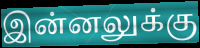
இன்னலுக்கு